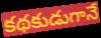
కథకుడుగానే